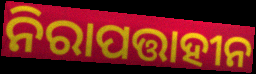
ନିରାପତ୍ତାହୀନ